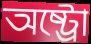
অষ্ট্ৰো